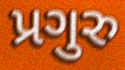
પ્રગુરુ